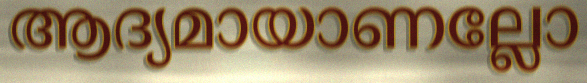
ആദ്യമായാണല്ലോ